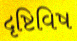
દૃષ્ટિવિષ